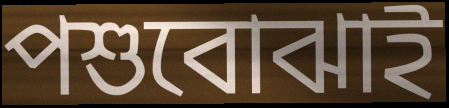
পশুবোঝাই